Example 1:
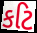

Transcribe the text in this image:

કટિ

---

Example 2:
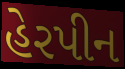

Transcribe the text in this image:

હેરપીન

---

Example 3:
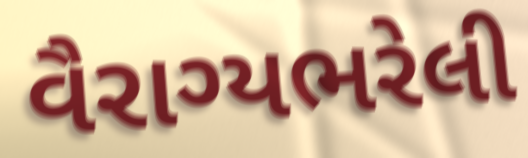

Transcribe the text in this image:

વૈરાગ્યભરેલી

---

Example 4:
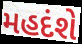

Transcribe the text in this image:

મહદંશે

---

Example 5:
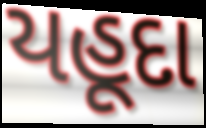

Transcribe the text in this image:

યહૂદા